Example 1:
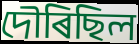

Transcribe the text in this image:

দৌৰিছিল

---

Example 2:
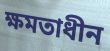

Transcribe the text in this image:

ক্ষমতাধীন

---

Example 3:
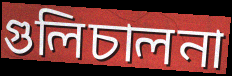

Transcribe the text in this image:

গুলিচালনা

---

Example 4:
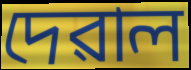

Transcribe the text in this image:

দেৱাল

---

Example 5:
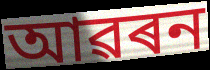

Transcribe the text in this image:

আৱৰন